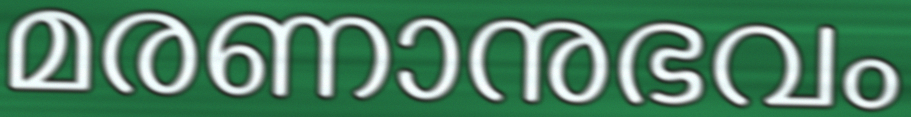
മരണാനുഭവം